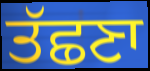
ਤੱਛਣਾ